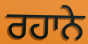
ਰਹਾਨੇ